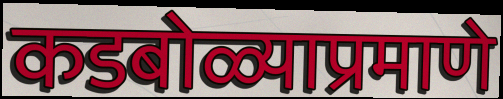
कडबोळ्याप्रमाणे